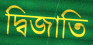
দ্বিজাতি